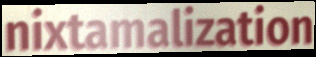
nixtamalization